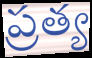
ప్రత్య